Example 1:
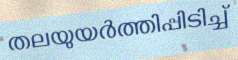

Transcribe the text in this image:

തലയുയർത്തിപ്പിടിച്ച്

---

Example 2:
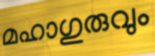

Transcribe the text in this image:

മഹാഗുരുവും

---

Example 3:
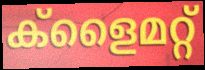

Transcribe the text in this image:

ക്ളൈമറ്റ്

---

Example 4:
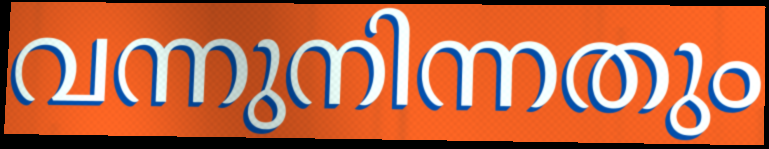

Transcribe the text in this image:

വന്നുനിന്നതും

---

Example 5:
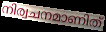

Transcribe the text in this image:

നിര്വചനമാണിത്